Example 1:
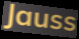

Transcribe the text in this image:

Jauss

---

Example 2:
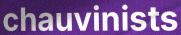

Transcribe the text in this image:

chauvinists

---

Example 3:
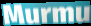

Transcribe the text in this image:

Murmu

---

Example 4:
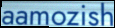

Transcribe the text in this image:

aamozish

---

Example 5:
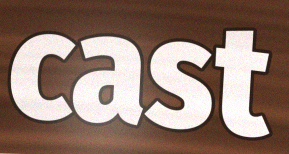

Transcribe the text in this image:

cast